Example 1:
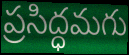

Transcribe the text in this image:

ప్రసిద్ధమగు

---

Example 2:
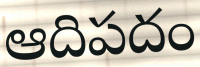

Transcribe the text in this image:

ఆదిపదం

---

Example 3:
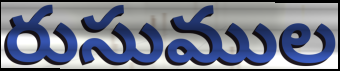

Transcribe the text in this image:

రుసుముల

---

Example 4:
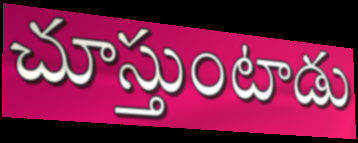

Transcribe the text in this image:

చూస్తుంటాడు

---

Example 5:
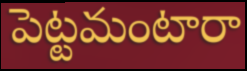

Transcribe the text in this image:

పెట్టమంటారా